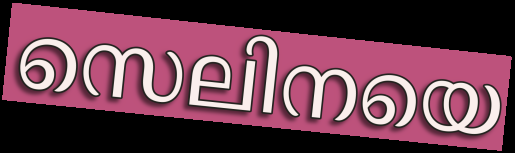
സെലിനയെ